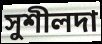
সুশীলদা